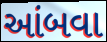
આંબવા